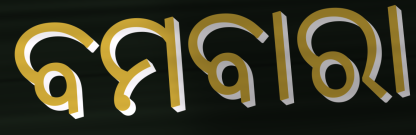
ବମବାରା